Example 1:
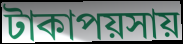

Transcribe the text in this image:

টাকাপয়সায়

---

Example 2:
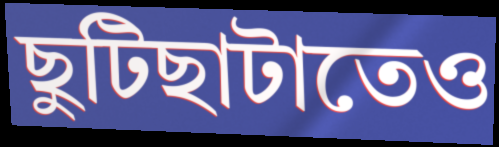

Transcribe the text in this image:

ছুটিছাটাতেও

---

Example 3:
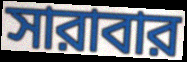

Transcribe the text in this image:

সারাবার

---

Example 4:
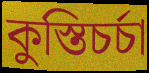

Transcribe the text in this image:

কুস্তিচর্চা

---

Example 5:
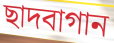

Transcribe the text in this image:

ছাদবাগান